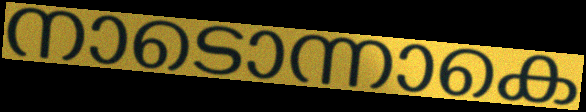
നാടൊന്നാകെ